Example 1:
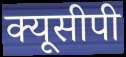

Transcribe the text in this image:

क्यूसीपी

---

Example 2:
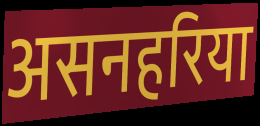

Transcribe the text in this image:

असनहरिया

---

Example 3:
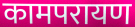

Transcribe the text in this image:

कामपरायण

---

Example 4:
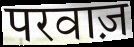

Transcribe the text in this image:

परवाज़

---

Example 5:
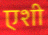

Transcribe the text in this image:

एशी